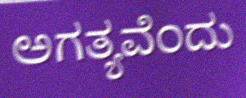
ಅಗತ್ಯವೆಂದು